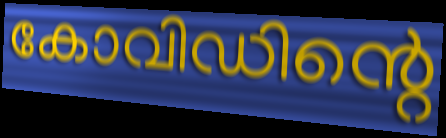
കോവിഡിന്റെ